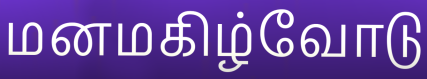
மனமகிழ்வோடு